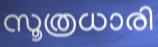
സൂത്രധാരി